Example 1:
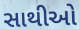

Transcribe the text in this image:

સાથીઓ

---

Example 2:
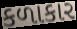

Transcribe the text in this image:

કળાકાર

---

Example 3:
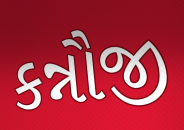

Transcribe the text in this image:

કન્નૌજી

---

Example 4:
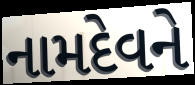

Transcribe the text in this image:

નામદેવને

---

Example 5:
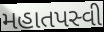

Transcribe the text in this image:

મહાતપસ્વી